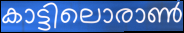
കാട്ടിലൊരാൺ